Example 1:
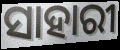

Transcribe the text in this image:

ସାହାରୀ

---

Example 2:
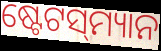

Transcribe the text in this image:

ଷ୍ଟେଟସ୍‌ମ୍ୟାନ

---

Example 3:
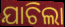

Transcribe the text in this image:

ଯାଚିଲା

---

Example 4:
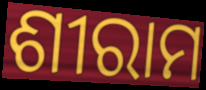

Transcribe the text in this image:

ଶୀରାମ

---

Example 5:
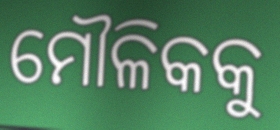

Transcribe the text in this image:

ମୌଳିକକୁ